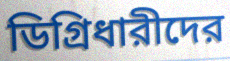
ডিগ্রিধারীদের